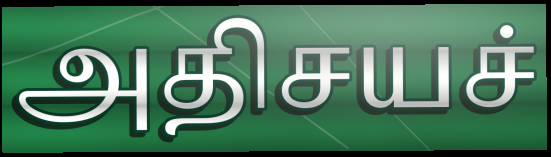
அதிசயச்